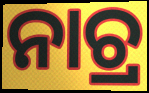
ନାଚ୍ର